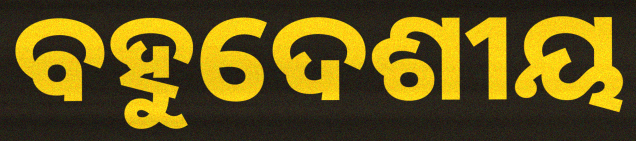
ବହୁଦେଶୀୟ